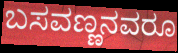
ಬಸವಣ್ಣನವರೂ